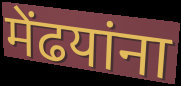
मेंढयांना